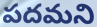
పదమని